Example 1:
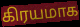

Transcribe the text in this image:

கிரயமாக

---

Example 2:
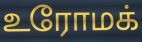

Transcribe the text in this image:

உரோமக்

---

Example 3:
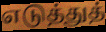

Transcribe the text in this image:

எடுத்துத்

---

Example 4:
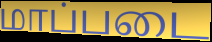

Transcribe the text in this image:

மாப்படை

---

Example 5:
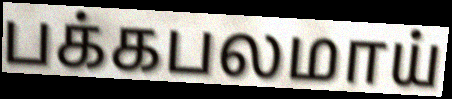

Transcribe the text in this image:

பக்கபலமாய்